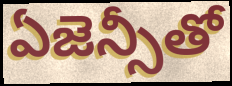
ఏజెన్సీతో